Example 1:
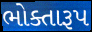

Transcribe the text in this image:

ભોક્તારૂપ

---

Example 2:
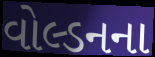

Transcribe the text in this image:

વોલ્ડનના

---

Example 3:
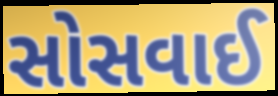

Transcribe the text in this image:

સોસવાઈ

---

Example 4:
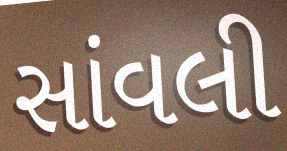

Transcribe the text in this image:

સાંવલી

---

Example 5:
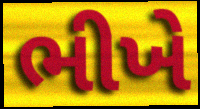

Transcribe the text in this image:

ભીખે